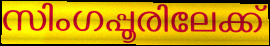
സിംഗപ്പൂരിലേക്ക്